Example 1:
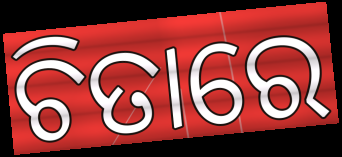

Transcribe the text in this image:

ଚିତାରେ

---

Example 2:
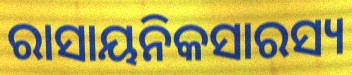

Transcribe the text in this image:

ରାସାୟନିକସାରସ୍ୟ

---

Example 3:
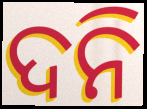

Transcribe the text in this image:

ଦନି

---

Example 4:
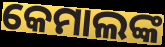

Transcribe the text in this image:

କେମାଲଙ୍କ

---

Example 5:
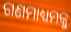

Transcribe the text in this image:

ଗଣମାଧ୍ୟମକୁ